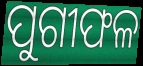
ପୁଗୀଫଳ